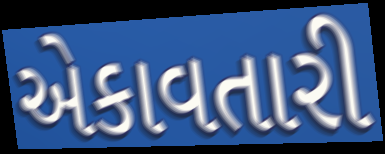
એકાવતારી